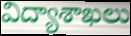
విద్యాశాఖలు